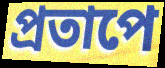
প্রতাপে